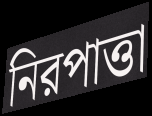
নিরপাত্তা